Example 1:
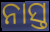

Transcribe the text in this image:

ନାସ୍ତ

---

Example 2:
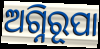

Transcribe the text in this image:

ଅଗ୍ନିରୂପା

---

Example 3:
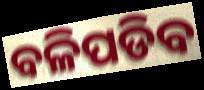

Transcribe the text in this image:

ବଳିପଡିବ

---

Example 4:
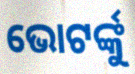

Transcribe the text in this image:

ଭୋଟର୍ଙ୍କୁ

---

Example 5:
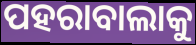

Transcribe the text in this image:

ପହରାବାଲାକୁ